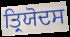
ਤ੍ਰਿਯੋਦਸ